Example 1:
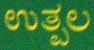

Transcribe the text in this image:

ಉತ್ಪಲ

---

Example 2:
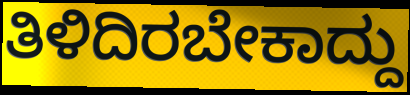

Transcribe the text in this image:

ತಿಳಿದಿರಬೇಕಾದ್ದು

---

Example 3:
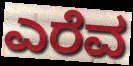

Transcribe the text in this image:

ಎರೆವ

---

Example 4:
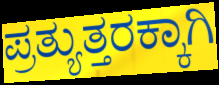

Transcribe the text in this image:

ಪ್ರತ್ಯುತ್ತರಕ್ಕಾಗಿ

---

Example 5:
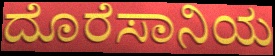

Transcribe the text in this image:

ದೊರೆಸಾನಿಯ